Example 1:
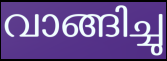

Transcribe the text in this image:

വാങ്ങിച്ചു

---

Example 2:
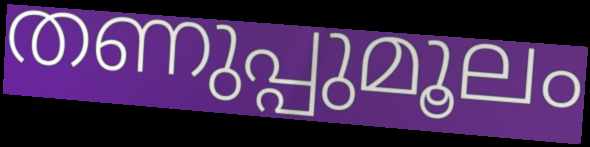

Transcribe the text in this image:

തണുപ്പുമൂലം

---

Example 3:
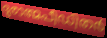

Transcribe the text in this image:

ദുരാത്മപീഡിതർ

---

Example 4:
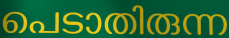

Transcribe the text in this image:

പെടാതിരുന്ന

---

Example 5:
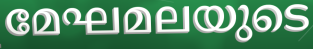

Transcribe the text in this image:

മേഘമലയുടെ